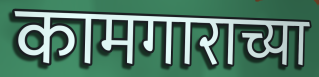
कामगाराच्या